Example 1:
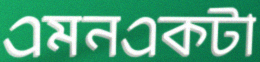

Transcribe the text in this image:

এমনএকটা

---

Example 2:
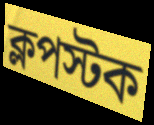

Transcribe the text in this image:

ক্লপস্টক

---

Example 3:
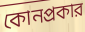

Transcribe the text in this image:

কোনপ্রকার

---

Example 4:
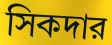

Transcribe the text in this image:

সিকদার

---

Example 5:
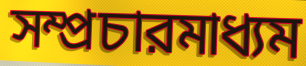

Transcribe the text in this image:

সম্প্রচারমাধ্যম